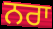
ਨਰਾ